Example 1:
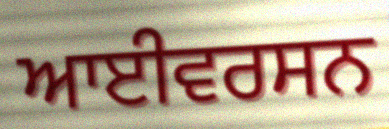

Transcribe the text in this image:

ਆਈਵਰਸਨ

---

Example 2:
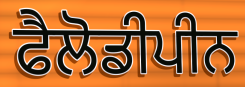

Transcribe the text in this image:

ਫੈਲੋਡੀਪੀਨ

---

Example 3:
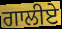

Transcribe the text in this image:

ਗਾਲੀਏ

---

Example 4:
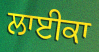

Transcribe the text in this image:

ਲਾਈਕਾ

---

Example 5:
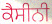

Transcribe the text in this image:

ਕੈਸੀਨੀ